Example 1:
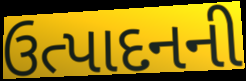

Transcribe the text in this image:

ઉત્પાદનની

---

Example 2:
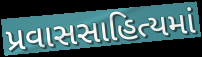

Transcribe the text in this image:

પ્રવાસસાહિત્યમાં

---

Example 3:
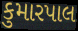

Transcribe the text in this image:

કુમારપાલ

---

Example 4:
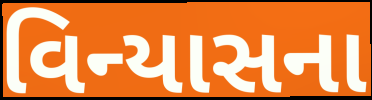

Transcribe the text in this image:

વિન્યાસના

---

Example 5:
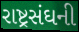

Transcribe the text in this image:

રાષ્ટ્રસંઘની